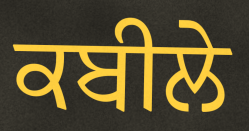
ਕਬੀਲੇ